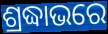
ଶ୍ରଦ୍ଧାଭରେ